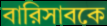
বারিসাবকে